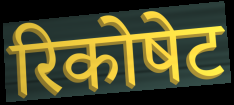
रिकोषेट